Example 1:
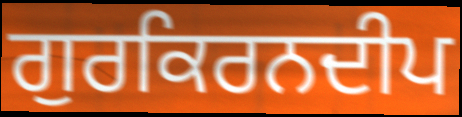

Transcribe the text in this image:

ਗੁਰਕਿਰਨਦੀਪ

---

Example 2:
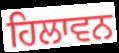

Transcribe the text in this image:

ਹਿਲਾਵਨ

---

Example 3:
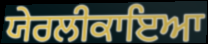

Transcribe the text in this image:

ਯੇਰਲੀਕਾਇਆ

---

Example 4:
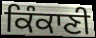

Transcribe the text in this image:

ਕਿੰਕਾਣੀ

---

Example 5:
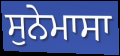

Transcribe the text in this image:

ਸੁਨੇਮਾਸਾ